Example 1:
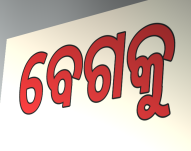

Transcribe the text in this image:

ବେଗକୁ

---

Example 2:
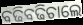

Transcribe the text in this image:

ବଢିବଢିଚାଲେ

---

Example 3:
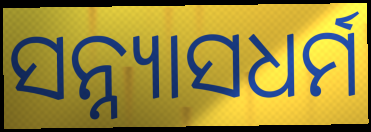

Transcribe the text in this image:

ସନ୍ନ୍ୟାସଧର୍ମ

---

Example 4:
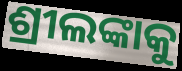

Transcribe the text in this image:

ଶ୍ରୀଲଙ୍କାକୁ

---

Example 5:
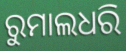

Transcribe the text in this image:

ରୁମାଲଧରି